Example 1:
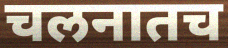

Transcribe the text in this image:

चलनातच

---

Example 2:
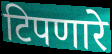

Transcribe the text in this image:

टिपणारे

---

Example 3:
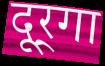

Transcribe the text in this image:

दूर्गा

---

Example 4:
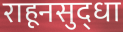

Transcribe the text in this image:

राहूनसुद्धा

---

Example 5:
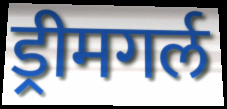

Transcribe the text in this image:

ड्रीमगर्ल